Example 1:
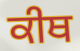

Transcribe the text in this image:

ਕੀਥ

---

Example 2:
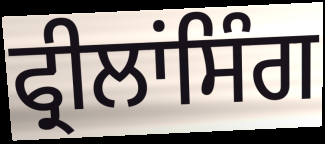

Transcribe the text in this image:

ਫ੍ਰੀਲਾਂਸਿੰਗ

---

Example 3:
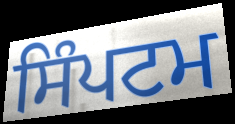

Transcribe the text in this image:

ਸਿੰਪਟਮ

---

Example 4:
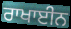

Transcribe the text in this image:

ਰਾਖਾਈਨ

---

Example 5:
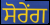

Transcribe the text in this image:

ਸੋਰੇਂਗ